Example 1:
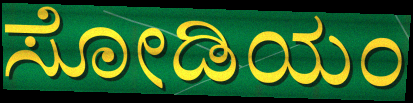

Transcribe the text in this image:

ಸೋಡಿಯಂ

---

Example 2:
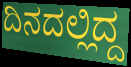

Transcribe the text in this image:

ದಿನದಲ್ಲಿದ್ದ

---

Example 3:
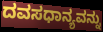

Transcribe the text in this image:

ದವಸಧಾನ್ಯವನ್ನು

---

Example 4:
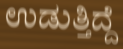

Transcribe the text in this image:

ಉಡುತ್ತಿದ್ದೆ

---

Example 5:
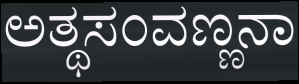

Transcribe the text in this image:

ಅತ್ಥಸಂವಣ್ಣನಾ